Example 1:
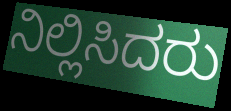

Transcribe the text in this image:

ನಿಲ್ಲಿಸಿದರು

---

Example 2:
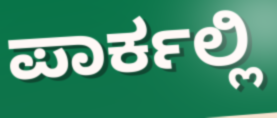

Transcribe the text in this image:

ಪಾರ್ಕಲ್ಲಿ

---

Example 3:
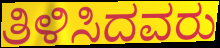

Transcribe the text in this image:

ತಿಳಿಸಿದವರು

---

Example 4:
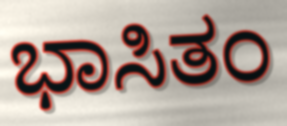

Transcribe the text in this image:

ಭಾಸಿತಂ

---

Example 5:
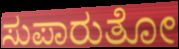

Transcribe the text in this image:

ಸುಪಾರುತೋ